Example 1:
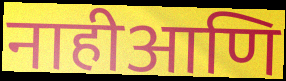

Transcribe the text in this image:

नाहीआणि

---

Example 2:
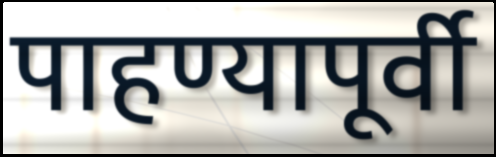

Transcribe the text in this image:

पाहण्यापूर्वी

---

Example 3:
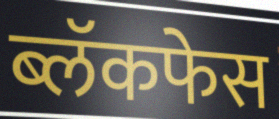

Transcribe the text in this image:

ब्लॅकफेस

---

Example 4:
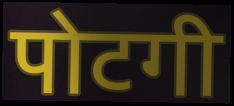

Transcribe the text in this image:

पोटगी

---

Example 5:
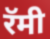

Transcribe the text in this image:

रॅमी